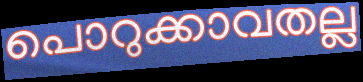
പൊറുക്കാവതല്ല